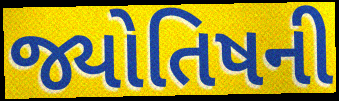
જ્યોતિષની